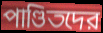
পাণ্ডিতদের